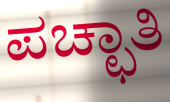
ಪಚ್ಛಾತಿ